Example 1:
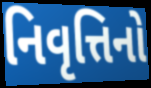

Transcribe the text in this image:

નિવૃત્તિનો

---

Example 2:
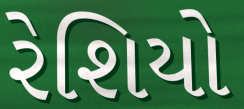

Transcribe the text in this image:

રેશિયો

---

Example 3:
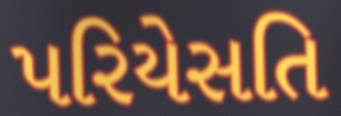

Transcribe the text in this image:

પરિયેસતિ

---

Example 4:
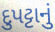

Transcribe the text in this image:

દુપટ્ટાનું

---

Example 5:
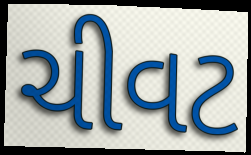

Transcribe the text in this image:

ચીવટ